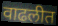
वाढलीत